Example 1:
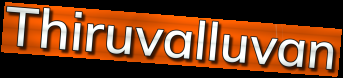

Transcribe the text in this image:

Thiruvalluvan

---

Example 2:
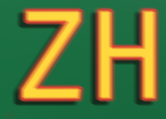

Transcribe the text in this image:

ZH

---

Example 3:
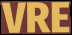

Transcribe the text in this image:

VRE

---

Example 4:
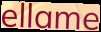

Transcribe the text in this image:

ellame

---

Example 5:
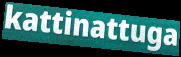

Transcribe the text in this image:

kattinattuga